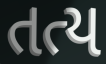
તત્ય